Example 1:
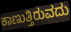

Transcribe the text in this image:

ಕಾಣುತ್ತಿರುವದು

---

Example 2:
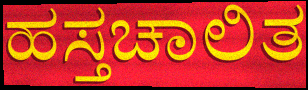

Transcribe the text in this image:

ಹಸ್ತಚಾಲಿತ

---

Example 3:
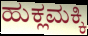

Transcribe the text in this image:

ಹುಕ್ಲಮಕ್ಕಿ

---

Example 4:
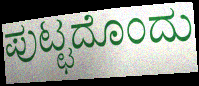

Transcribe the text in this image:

ಪುಟ್ಟದೊಂದು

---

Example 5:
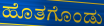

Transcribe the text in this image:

ಹೊತಗೊಂಡು